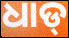
ଧାଡ୍